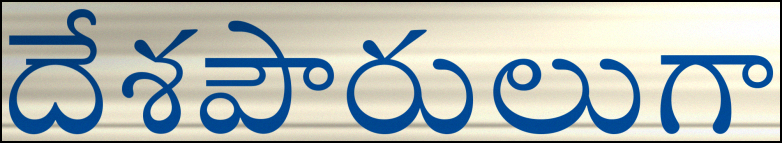
దేశపౌరులుగా